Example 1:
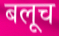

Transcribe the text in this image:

बलूच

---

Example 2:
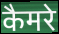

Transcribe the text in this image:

कैमरे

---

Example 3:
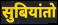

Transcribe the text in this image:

सुबियांतो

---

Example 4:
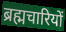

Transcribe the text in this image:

ब्रह्मचारियों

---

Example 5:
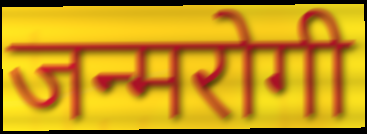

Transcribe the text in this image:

जन्मरोगी